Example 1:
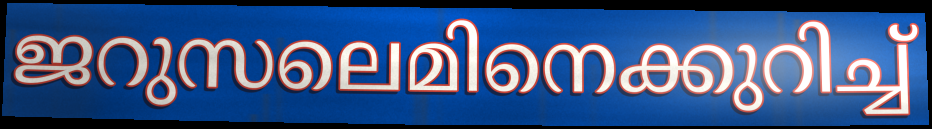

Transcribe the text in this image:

ജറുസലെമിനെക്കുറിച്ച്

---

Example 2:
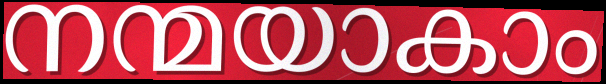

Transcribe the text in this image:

നന്മയാകാം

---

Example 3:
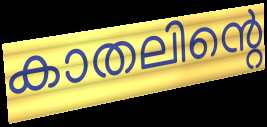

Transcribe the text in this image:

കാതലിന്റെ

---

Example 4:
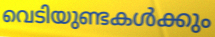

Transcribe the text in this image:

വെടിയുണ്ടകൾക്കും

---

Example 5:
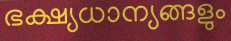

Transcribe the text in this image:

ഭക്ഷ്യധാന്യങ്ങളും